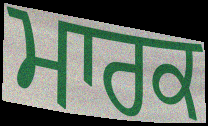
ਮਾਰਕ